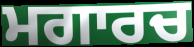
ਮਗਾਰਚ